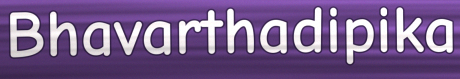
Bhavarthadipika